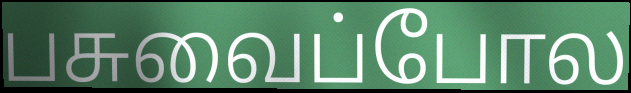
பசுவைப்போல